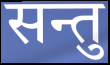
सन्‍तु